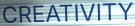
CREATIVITY